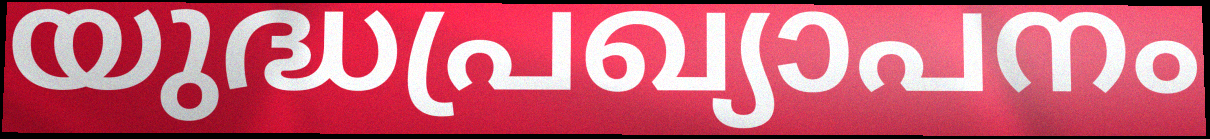
യുദ്ധപ്രഖ്യാപനം